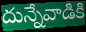
దున్నేవాడికి